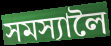
সমস্যালৈ